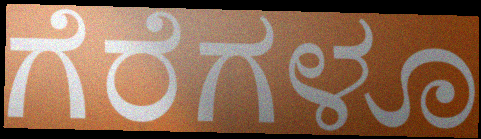
ಗೆರೆಗಳೂ